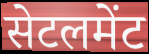
सेटलमेंट